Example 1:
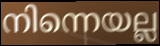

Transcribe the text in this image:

നിന്നെയല്ല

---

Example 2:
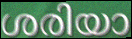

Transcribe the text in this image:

ശരിയാ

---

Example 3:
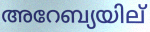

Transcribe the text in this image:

അറേബ്യയില്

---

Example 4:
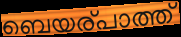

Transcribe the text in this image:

ബെയര്പാത്ത്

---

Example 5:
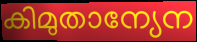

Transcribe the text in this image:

കിമുതാന്യേന